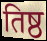
तिष्ठ